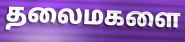
தலைமகளை